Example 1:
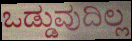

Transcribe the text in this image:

ಒಡ್ಡುವುದಿಲ್ಲ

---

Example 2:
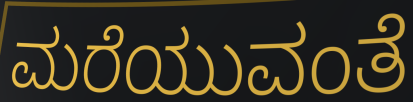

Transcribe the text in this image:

ಮರೆಯುವಂತೆ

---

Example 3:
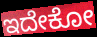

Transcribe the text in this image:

ಇದೇಕೋ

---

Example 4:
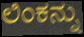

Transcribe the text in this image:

ಲಿಂಕನ್ನು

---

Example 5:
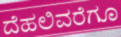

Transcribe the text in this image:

ದೆಹಲಿವರೆಗೂ